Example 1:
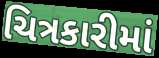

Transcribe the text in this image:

ચિત્રકારીમાં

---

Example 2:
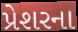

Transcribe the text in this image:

પ્રેશરના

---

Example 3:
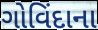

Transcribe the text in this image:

ગોવિંદાના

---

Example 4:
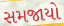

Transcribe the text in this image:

સમજાયો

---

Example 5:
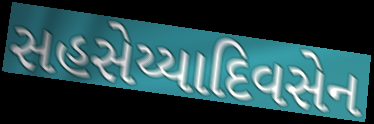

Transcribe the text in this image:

સહસેય્યાદિવસેન